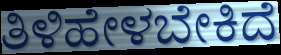
ತಿಳಿಹೇಳಬೇಕಿದೆ